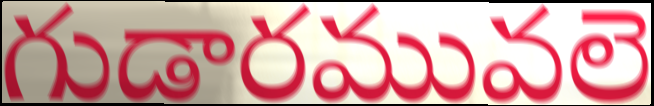
గుడారమువలె